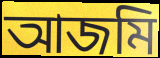
আজমি